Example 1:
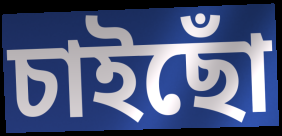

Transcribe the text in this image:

চাইছোঁ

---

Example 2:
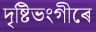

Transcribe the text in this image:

দৃষ্টিভংগীৰে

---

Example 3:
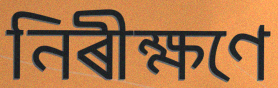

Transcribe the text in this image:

নিৰীক্ষণে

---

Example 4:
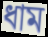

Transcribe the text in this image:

ধাম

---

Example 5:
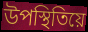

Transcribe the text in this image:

উপস্থিতিয়ে